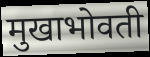
मुखाभोवती